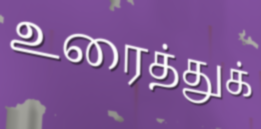
உரைத்துக்